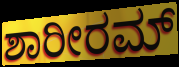
ಶಾರೀರಮ್